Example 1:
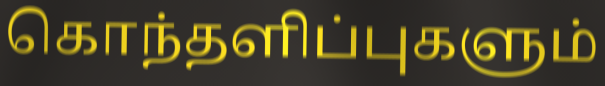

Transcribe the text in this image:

கொந்தளிப்புகளும்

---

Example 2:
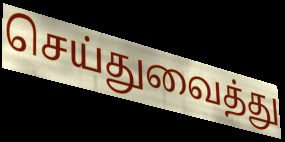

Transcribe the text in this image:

செய்துவைத்து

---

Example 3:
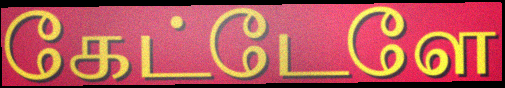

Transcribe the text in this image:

கேட்டேளே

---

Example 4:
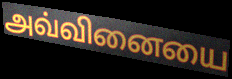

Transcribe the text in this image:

அவ்வினையை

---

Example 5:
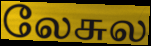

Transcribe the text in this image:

லேசுல